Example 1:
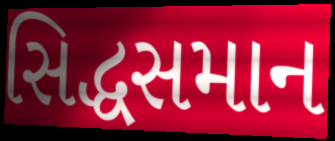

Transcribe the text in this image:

સિદ્ધસમાન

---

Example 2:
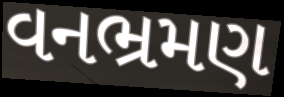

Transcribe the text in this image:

વનભ્રમણ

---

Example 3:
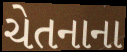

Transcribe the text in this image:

ચેતનાના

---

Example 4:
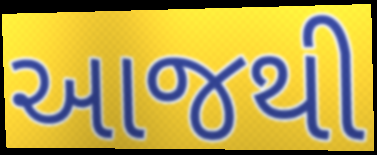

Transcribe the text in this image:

આજથી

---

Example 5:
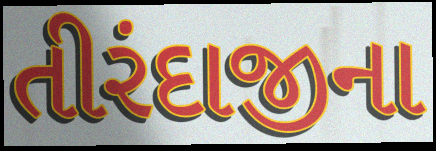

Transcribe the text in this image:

તીરંદાજીના